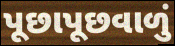
પૂછાપૂછવાળું